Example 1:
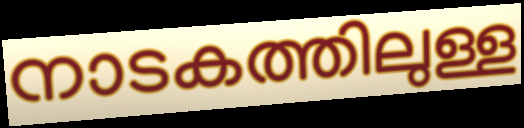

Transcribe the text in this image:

നാടകത്തിലുള്ള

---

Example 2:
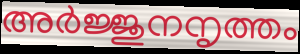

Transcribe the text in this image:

അർജ്ജുനനൃത്തം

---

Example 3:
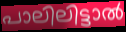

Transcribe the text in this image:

പാലിലിട്ടാൽ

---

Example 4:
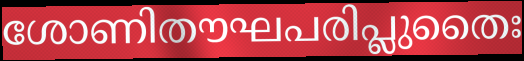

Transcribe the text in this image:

ശോണിതൗഘപരിപ്ലുതൈഃ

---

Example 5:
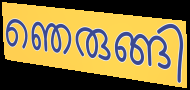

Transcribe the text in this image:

ഞെരുങ്ങി